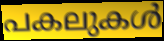
പകലുകൾ